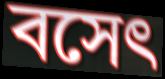
বসেৎ